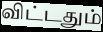
விட்டதும்